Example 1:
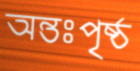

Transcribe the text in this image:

অন্তঃপৃষ্ঠ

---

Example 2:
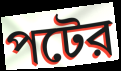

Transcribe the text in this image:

পটের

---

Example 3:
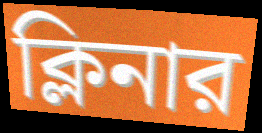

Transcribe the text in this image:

ক্লিনার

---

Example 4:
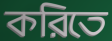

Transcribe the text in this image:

করিতে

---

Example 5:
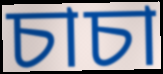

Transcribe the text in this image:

চাচা